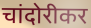
चांदोरीकर